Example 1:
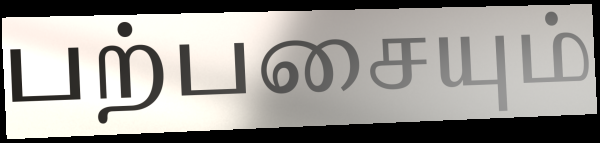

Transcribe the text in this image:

பற்பசையும்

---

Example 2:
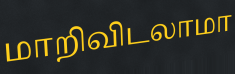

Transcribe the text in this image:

மாறிவிடலாமா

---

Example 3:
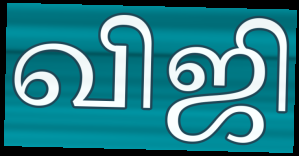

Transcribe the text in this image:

விஜி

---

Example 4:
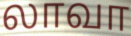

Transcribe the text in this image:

லாவா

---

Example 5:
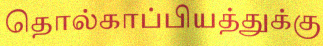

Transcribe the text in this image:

தொல்காப்பியத்துக்கு